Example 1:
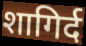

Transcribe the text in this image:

शागिर्द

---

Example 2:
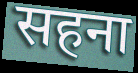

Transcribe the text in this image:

सहना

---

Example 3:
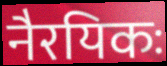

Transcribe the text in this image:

नैरयिकः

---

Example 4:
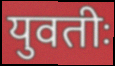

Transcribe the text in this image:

युवतीः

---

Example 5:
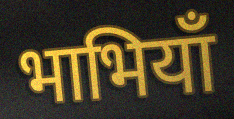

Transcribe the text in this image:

भाभियाँ